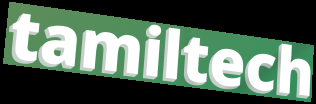
tamiltech